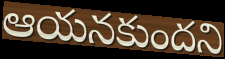
ఆయనకుందని